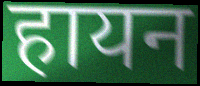
हायन